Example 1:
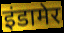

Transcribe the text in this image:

इंडामेर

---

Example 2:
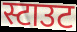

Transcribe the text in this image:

स्टाउट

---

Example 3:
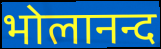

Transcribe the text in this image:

भोलानन्द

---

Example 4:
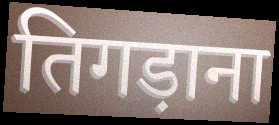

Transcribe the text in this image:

तिगड़ाना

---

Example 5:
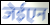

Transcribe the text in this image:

जेईएन